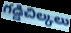
గడ్డిచిల్కలు